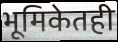
भूमिकेतही